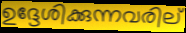
ഉദ്ദേശിക്കുന്നവരില്